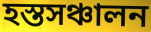
হস্তসঞ্চালন